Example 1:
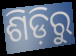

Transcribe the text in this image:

ଶିଡ଼ିରୁ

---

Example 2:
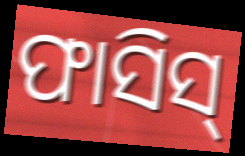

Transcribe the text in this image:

ଫାସିସ୍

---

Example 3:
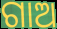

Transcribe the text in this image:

ଗାଅ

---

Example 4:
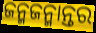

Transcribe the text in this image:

ଜନ୍ମଜନ୍ମାନ୍ତର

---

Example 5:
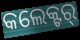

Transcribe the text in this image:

କଲେକ୍ଟର୍